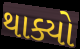
થાક્યો